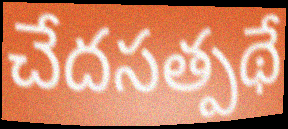
చేదసత్పథే